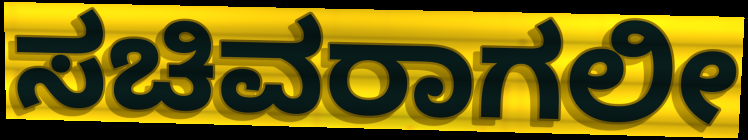
ಸಚಿವರಾಗಲೀ